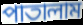
পাতালাম